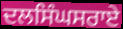
ਦਲਸਿੰਘਸਰਾਏ